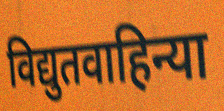
विद्युतवाहिन्या